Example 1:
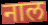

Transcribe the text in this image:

नाल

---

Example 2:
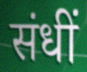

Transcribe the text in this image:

संधीं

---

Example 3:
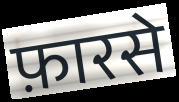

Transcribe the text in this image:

फ़ारसे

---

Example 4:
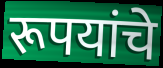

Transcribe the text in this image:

रूपयांचे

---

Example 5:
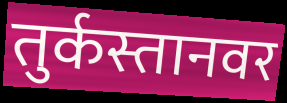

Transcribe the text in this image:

तुर्कस्तानवर